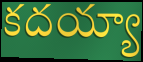
కదయ్యా